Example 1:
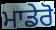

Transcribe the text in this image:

ਮਾਡੇਰੋ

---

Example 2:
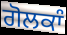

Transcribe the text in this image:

ਗੋਲਕਾੰ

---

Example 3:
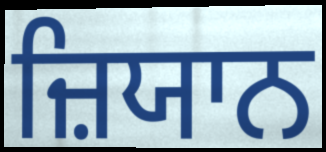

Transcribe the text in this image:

ਜ਼ਿਯਾਨ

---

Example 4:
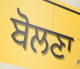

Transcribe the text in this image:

ਬੋਲਣਾ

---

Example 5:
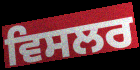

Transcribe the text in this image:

ਵਿਸਲਰ